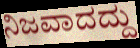
ನಿಜವಾದದ್ದು